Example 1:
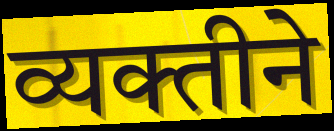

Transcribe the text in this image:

व्यक्तीने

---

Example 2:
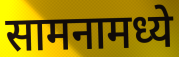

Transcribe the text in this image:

सामनामध्ये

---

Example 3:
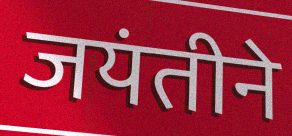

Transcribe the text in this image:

जयंतीने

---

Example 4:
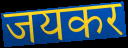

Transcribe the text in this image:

जयकर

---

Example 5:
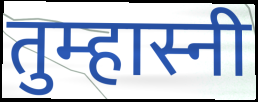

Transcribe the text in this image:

तुम्हास्नी